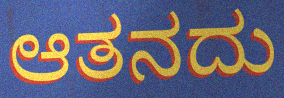
ಆತನದು